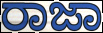
ರಾಜಾ